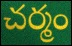
చర్మం